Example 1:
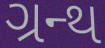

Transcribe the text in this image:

ગ્રન્થ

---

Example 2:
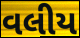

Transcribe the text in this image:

વલીય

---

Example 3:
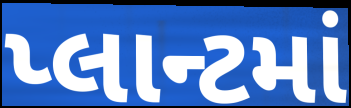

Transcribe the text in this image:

પ્લાન્ટમાં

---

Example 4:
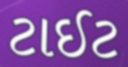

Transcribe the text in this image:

ટાઈટ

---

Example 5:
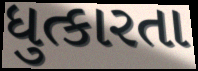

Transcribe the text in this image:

ધુત્કારતા